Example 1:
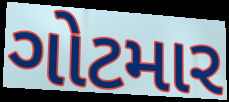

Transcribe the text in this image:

ગોટમાર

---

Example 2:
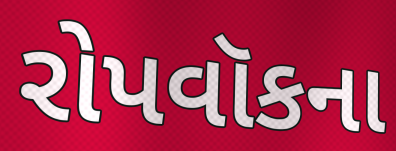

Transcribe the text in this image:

રોપવૉકના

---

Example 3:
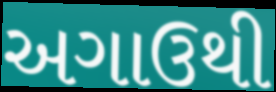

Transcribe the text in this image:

અગાઉથી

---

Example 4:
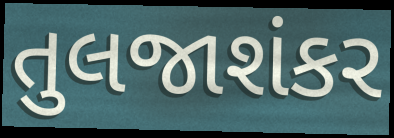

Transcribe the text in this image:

તુલજાશંકર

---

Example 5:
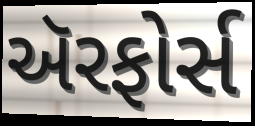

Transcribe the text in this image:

ઍરફોર્સ